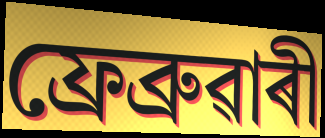
ফ্ৰেব্ৰুৱাৰী